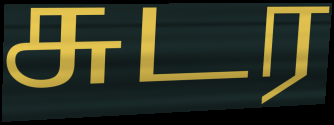
சுடர